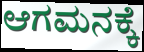
ಆಗಮನಕ್ಕೆ